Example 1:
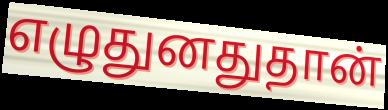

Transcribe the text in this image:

எழுதுனதுதான்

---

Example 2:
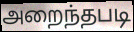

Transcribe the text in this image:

அறைந்தபடி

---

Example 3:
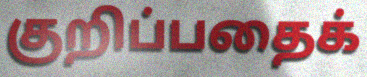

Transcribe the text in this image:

குறிப்பதைக்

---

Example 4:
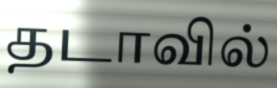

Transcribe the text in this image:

தடாவில்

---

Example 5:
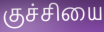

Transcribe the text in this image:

குச்சியை